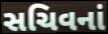
સચિવનાં